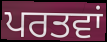
ਪਰਤਵਾਂ